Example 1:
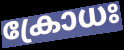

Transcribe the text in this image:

ക്രോധഃ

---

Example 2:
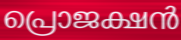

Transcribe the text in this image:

പ്രൊജക്ഷൻ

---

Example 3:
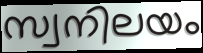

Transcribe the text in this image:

സ്വനിലയം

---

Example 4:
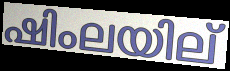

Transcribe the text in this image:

ഷിംലയില്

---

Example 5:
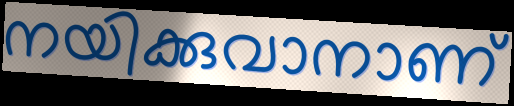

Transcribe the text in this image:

നയിക്കുവാനാണ്